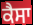
ਕੈਸਾ